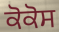
ਕੋਕੋਸ